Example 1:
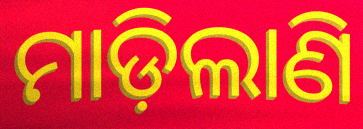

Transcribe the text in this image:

ମାଡ଼ିଲାଣି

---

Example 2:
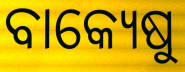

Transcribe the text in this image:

ବାକ୍ୟେଷୁ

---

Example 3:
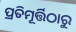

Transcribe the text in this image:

ପ୍ରତିମୂର୍ତ୍ତିଠାରୁ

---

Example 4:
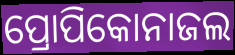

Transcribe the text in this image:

ପ୍ରୋପିକୋନାଜଲ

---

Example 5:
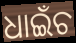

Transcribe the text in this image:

ଧାଇଁଚ